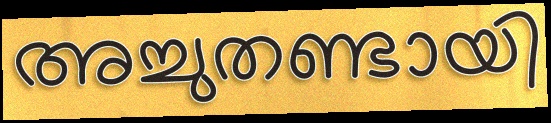
അച്ചുതണ്ടായി